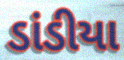
ડાંડીયા